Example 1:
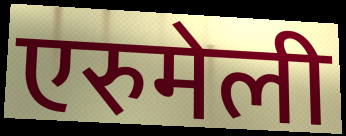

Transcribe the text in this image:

एरुमेली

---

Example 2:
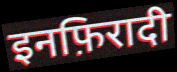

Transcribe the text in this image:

इनफ़िरादी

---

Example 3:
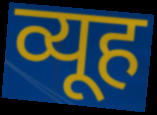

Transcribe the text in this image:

व्‍यूह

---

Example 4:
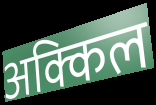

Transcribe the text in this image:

अक्किल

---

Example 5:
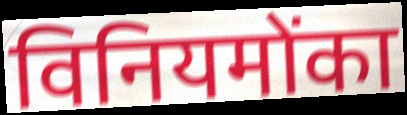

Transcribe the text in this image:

विनियमोंका